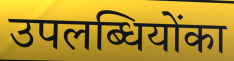
उपलब्धियोंका